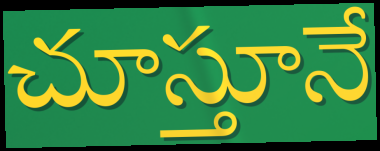
చూస్తూనే